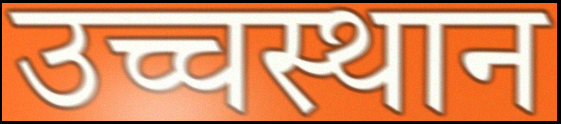
उच्चस्थान